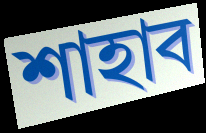
শাহাব